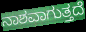
ನಾಶವಾಗುತ್ತದೆ